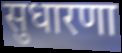
सुधारणा